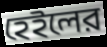
হেইলের